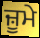
ਜ਼ੂਮੇ